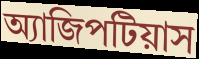
অ্যাজিপটিয়াস